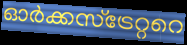
ഓർക്കസ്ട്രേറ്ററെ